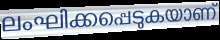
ലംഘിക്കപ്പെടുകയാണ്